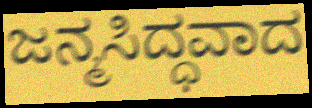
ಜನ್ಮಸಿದ್ಧವಾದ